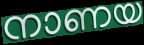
നാണയ